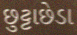
છુટ્ટાછેડા